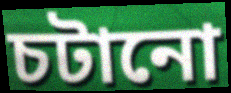
চটানো